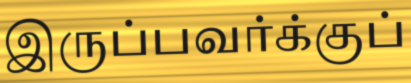
இருப்பவர்க்குப்